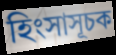
হিংসাসূচক